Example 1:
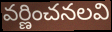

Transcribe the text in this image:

వర్ణించనలవి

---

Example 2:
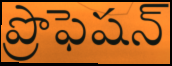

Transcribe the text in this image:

ప్రొఫెషన్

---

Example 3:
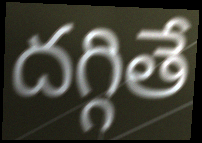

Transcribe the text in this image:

దగ్గితే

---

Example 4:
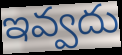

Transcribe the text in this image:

ఇవ్వదు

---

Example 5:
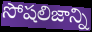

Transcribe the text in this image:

సోషలిజాన్ని